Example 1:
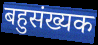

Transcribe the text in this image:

बहुसंख्यक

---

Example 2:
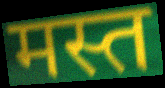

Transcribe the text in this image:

मस्‍त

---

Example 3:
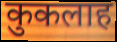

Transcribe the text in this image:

कुकलाह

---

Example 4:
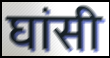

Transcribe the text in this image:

घांसी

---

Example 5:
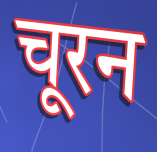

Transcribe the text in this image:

चूरन